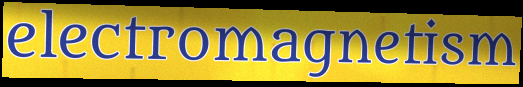
electromagnetism